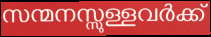
സന്മനസ്സുള്ളവർക്ക്